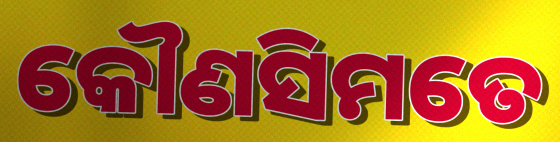
କୌଣସିମତେ